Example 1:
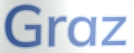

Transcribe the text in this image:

Graz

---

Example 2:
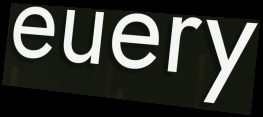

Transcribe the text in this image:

euery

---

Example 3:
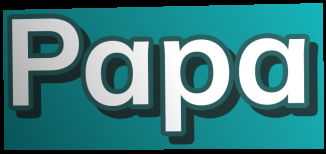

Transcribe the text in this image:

Papa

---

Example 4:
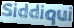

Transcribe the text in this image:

Siddiqui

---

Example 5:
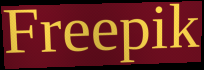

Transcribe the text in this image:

Freepik